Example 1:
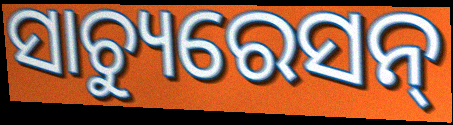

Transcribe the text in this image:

ସାଚ୍ୟୁରେସନ୍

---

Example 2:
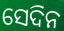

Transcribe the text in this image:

ସେଦିନ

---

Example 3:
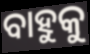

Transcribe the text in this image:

ବାହୁକୁ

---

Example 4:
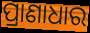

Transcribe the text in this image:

ପ୍ରାଣାଧାର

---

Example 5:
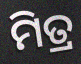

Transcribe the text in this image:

ମିତ୍ର